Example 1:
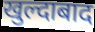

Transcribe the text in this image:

खुल्दाबाद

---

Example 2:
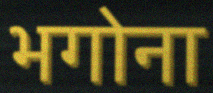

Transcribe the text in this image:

भगोना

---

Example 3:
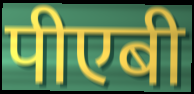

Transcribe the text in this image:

पीएबी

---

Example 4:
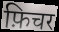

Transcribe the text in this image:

फ़िचर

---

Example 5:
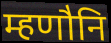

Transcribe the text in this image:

म्हणौनि